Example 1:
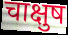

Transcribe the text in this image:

चाक्षुष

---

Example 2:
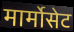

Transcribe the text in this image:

मार्मोसेट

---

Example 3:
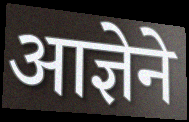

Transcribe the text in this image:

आज्ञेने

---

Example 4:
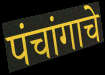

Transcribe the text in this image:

पंचांगाचे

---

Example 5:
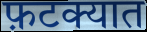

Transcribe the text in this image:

फ़टक्यात